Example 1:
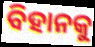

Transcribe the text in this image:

ବିହାନକୁ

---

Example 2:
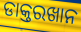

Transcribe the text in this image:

ଡାକ୍ତରଖାନ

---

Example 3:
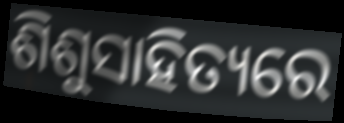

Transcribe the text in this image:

ଶିଶୁସାହିତ୍ୟରେ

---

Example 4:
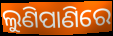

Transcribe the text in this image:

ଲୁଣିପାଣିରେ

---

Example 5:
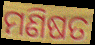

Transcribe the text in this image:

ମଣିଷତ